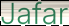
Jafar